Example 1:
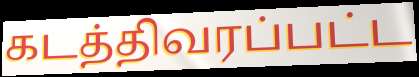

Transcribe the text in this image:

கடத்திவரப்பட்ட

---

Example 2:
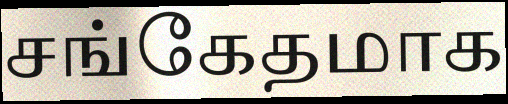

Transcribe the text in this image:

சங்கேதமாக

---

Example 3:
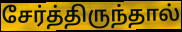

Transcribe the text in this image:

சேர்த்திருந்தால்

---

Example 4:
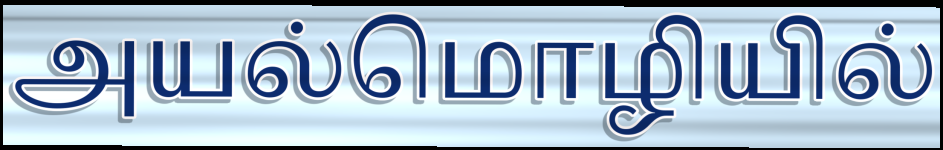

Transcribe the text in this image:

அயல்மொழியில்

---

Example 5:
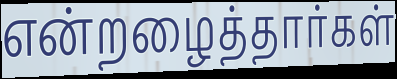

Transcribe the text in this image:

என்றழைத்தார்கள்